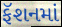
ફૅશનમાં